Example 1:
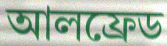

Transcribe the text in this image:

আলফ্ৰেড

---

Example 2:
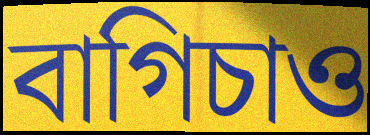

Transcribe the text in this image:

বাগিচাও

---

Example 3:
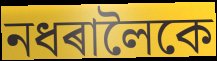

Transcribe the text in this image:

নধৰালৈকে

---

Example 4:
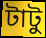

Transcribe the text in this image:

টাটু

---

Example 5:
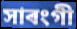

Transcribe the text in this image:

সাৰংগী